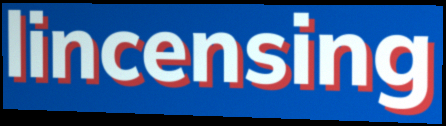
lincensing